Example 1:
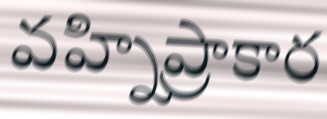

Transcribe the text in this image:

వహ్నిప్రాకార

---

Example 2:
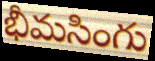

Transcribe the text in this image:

భీమసింగు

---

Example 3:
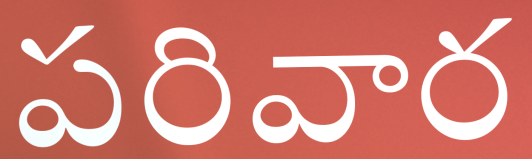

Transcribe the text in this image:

పరివార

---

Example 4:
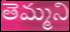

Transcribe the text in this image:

తెమ్మని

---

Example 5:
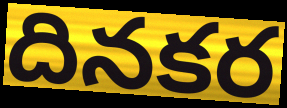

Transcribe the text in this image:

దినకర